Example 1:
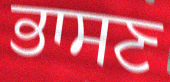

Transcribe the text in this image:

ਭਾਸਣ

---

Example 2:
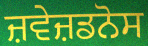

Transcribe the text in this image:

ਜ਼ਵੇਜ਼ਡਨੋਸ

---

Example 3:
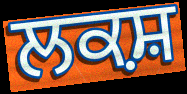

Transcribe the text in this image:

ਲਕ਼ਸ਼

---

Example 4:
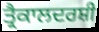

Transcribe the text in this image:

ਤ੍ਰੈਕਾਲਦਰਸ਼ੀ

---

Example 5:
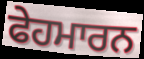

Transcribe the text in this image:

ਫੇਹਮਾਰਨ